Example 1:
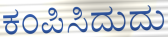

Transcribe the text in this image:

ಕಂಪಿಸಿದುದು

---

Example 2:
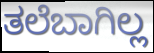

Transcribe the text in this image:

ತಲೆಬಾಗಿಲ್ಲ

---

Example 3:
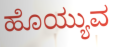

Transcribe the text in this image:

ಹೊಯ್ಯುವ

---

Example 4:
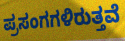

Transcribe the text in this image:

ಪ್ರಸಂಗಗಳಿರುತ್ತವೆ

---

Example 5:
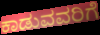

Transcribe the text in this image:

ಕಾಡುವವರಿಗೆ